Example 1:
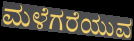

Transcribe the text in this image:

ಮಳೆಗರೆಯುವ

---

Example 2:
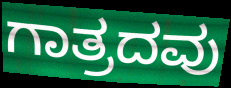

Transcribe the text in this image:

ಗಾತ್ರದವು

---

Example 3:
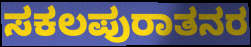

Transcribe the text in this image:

ಸಕಲಪುರಾತನರ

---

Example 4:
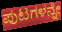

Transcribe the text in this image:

ಪುಟಗಳನ್ನೇ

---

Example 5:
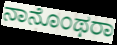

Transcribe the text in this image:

ನಾನೊಂಥರಾ